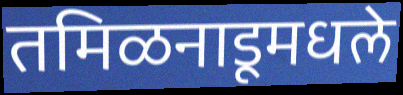
तमिळनाडूमधले